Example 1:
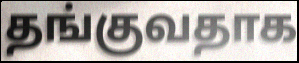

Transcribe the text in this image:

தங்குவதாக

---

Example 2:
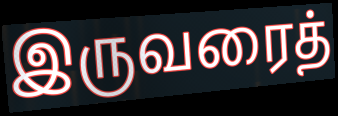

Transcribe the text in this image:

இருவரைத்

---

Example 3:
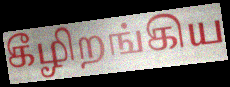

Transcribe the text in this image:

கீழிறங்கிய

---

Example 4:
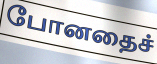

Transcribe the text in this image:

போனதைச்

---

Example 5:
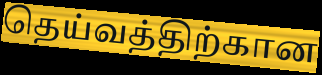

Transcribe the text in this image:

தெய்வத்திற்கான